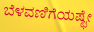
ಬೆಳವಣಿಗೆಯಷ್ಟೇ